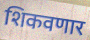
शिकवणार